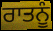
ਰਾਤਨੂੰ